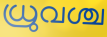
ധ്രുവശ്ച